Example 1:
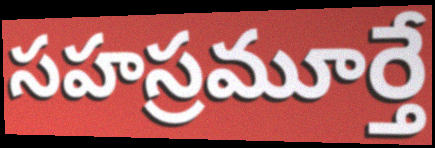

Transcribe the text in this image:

సహస్రమూర్తే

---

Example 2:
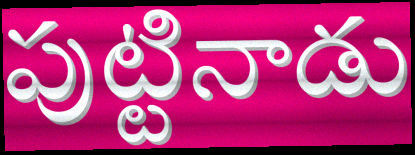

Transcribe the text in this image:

పుట్టినాడు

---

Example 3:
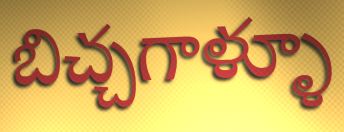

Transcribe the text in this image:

బిచ్చగాళ్ళూ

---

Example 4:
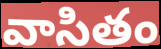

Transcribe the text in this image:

వాసితం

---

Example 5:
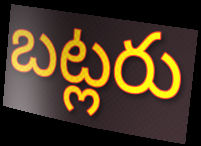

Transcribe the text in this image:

బట్లరు